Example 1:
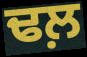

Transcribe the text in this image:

ਢਲ਼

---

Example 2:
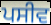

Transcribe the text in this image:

ਪਸੀਵ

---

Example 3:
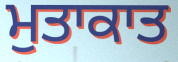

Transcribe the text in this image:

ਮੁਤਾਕਾਤ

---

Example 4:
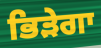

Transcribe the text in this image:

ਭਿੜੇਗਾ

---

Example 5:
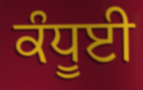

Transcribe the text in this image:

ਕੰਧੂਈ